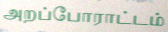
அறப்போராட்டம்